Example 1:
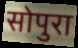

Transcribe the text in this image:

सोपुरा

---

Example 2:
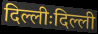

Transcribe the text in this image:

दिल्लीःदिल्ली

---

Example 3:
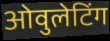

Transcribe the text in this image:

ओवुलेटिंग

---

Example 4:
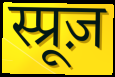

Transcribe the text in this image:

स्प्रूज़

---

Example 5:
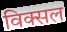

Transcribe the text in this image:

विक्सल